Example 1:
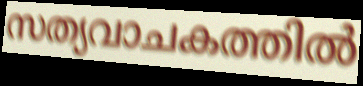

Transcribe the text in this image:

സത്യവാചകത്തിൽ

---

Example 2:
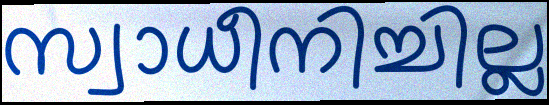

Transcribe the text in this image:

സ്വാധീനിച്ചില്ല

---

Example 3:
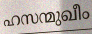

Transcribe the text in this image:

ഹസന്മുഖീം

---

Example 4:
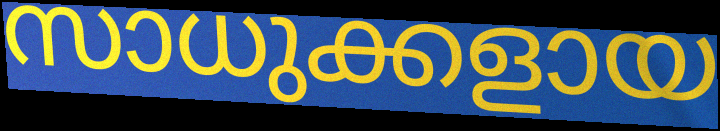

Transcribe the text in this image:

സാധുക്കളായ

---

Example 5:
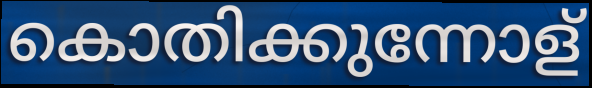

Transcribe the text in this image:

കൊതിക്കുന്നോള്